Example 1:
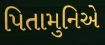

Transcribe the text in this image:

પિતામુનિએ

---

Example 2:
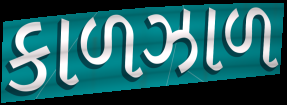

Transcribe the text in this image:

કાળઝાળ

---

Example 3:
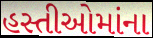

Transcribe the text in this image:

હસ્તીઓમાંના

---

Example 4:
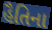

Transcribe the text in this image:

હૈતિના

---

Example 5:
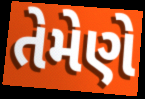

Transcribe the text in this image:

તેમેણે